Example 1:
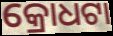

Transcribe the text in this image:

କ୍ରୋଧଟା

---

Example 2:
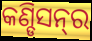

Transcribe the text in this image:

କଣ୍ଡିସନ୍‌ର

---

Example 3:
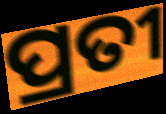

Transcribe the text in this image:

ପ୍ରତୀ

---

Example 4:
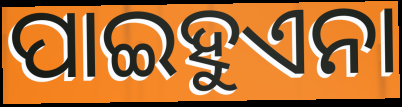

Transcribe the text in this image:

ପାଇହୁଏନା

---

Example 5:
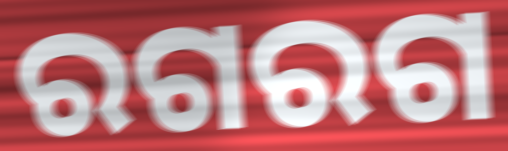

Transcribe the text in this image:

ରଗରଗ